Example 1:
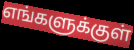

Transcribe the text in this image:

எங்களுக்குள்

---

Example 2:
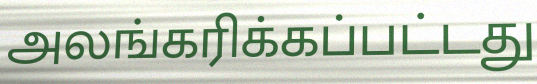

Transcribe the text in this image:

அலங்கரிக்கப்பட்டது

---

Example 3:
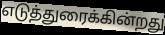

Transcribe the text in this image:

எடுத்துரைக்கின்றது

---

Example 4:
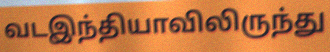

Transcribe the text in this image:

வடஇந்தியாவிலிருந்து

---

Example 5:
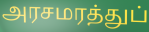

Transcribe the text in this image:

அரசமரத்துப்